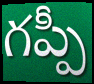
గప్పీ